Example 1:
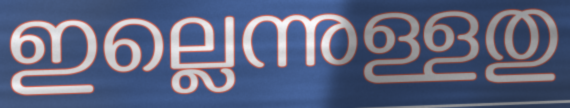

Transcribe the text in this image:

ഇല്ലെന്നുള്ളതു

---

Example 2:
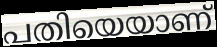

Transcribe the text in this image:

പതിയെയാണ്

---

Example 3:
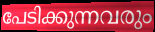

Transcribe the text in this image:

പേടിക്കുന്നവരും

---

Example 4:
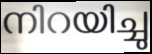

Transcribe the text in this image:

നിറയിച്ചു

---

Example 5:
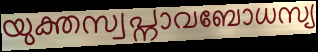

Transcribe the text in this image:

യുക്തസ്വപ്നാവബോധസ്യ